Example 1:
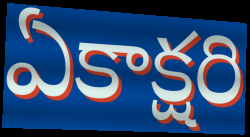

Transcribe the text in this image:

ఏకాక్షరి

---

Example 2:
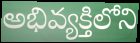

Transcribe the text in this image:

అభివ్యక్తిలోని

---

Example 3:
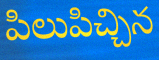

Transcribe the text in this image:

పిలుపిచ్చిన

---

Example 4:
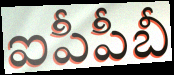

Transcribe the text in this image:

ఐపీపీబీ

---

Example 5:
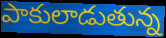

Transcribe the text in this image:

పాకులాడుతున్న